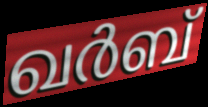
ഖർബ്